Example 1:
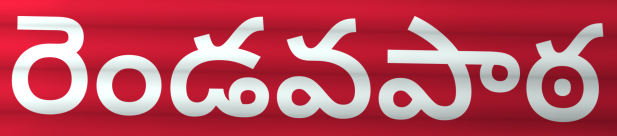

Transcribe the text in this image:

రెండవపాఠ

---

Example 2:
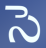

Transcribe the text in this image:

సె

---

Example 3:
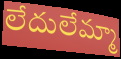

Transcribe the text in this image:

లేదులేమ్మా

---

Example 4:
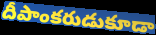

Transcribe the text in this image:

దీపాంకరుడుకూడా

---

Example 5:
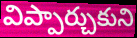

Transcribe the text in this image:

విప్పార్చుకుని